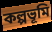
কল্পভূমি